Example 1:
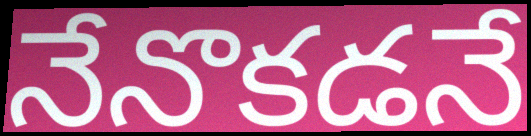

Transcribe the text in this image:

నేనొకడనే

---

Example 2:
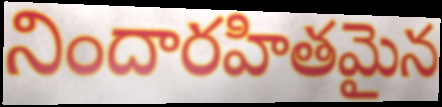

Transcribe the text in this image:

నిందారహితమైన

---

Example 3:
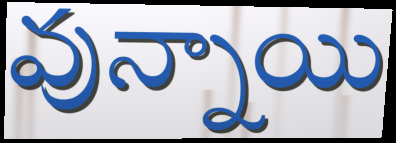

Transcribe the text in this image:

వున్నాయి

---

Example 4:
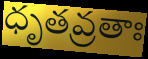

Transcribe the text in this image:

ధృతవ్రతాః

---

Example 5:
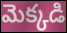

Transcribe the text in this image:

మెక్కడి